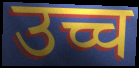
उच्च